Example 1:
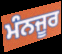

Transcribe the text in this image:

ਮੰਨਜੂਰ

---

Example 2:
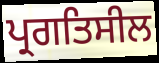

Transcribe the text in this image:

ਪ੍ਰਗਤਿਸੀਲ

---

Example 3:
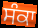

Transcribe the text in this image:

ਸੰਕਾ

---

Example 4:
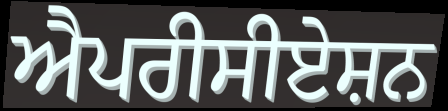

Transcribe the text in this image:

ਐਪਰੀਸੀਏਸ਼ਨ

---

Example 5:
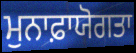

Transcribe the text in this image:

ਮੁਨਾਫ਼ਾਯੋਗਤਾ